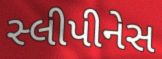
સ્લીપીનેસ